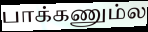
பாக்கணும்ல